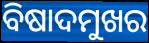
ବିଷାଦମୁଖର